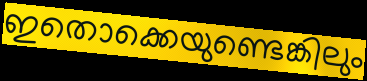
ഇതൊക്കെയുണ്ടെങ്കിലും